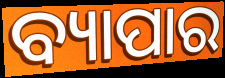
ବ୍ୟାପାର